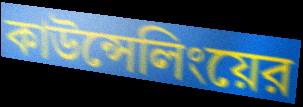
কাউন্সেলিংয়ের